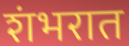
शंभरात